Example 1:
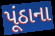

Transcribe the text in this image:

પૂંઠાના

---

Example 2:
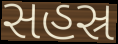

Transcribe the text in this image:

સહસ્ર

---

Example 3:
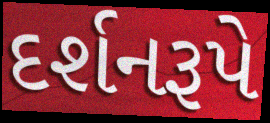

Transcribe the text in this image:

દર્શનરૂપે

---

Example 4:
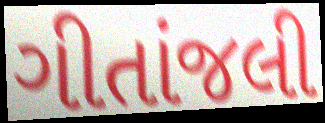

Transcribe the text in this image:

ગીતાંજલી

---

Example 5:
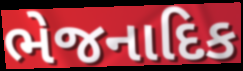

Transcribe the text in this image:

ભેજનાદિક